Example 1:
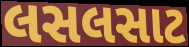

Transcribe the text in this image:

લસલસાટ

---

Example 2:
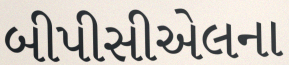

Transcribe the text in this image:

બીપીસીએલના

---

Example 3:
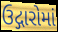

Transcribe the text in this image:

ઉદ્ગારોમાં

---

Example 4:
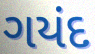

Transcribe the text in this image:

ગયંદ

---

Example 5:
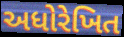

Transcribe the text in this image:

અધોરેખિત